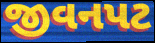
જીવનપટ